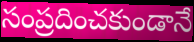
సంప్రదించకుండానే